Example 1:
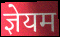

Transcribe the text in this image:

ज्ञेयम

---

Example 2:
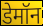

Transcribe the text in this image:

डेमॉन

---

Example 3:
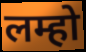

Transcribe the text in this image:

लम्हो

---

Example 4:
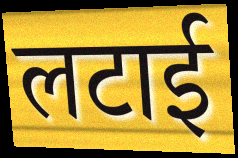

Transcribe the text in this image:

लटाई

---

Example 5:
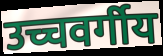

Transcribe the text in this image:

उच्चवर्गीय